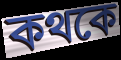
কথকে